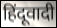
हिंदूवादी